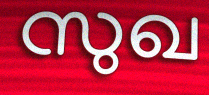
സുഖ